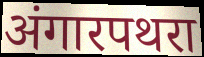
अंगारपथरा